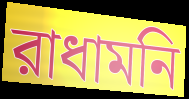
রাধামনি